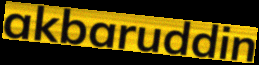
akbaruddin